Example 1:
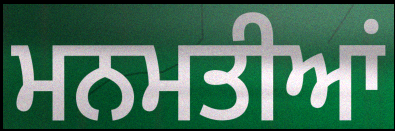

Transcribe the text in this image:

ਮਨਮਤੀਆਂ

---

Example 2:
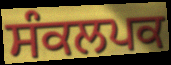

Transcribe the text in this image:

ਸੰਕਲਪਕ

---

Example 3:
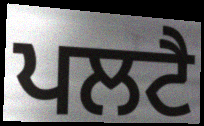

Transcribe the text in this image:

ਪਲਟੈ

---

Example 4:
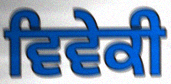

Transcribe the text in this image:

ਵਿਵੇਕੀ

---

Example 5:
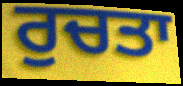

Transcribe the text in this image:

ਰੁਚਤਾ